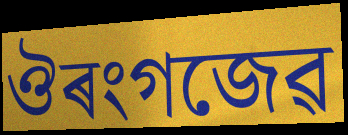
ঔৰংগজেৱ